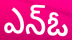
ఎన్ఓ